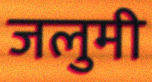
जलुमी